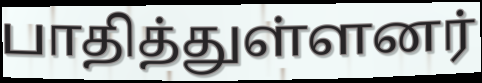
பாதித்துள்ளனர்